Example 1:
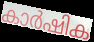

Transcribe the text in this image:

കാർഷിക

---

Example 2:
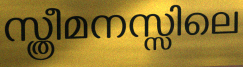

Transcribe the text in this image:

സ്ത്രീമനസ്സിലെ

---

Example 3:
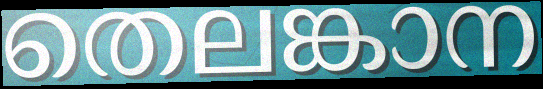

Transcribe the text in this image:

തെലങ്കാന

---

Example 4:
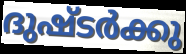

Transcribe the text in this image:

ദുഷ്ടർക്കു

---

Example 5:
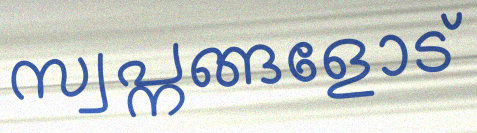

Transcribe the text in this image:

സ്വപ്നങ്ങളോട്